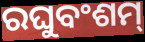
ରଘୁବଂଶମ୍